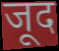
जूद